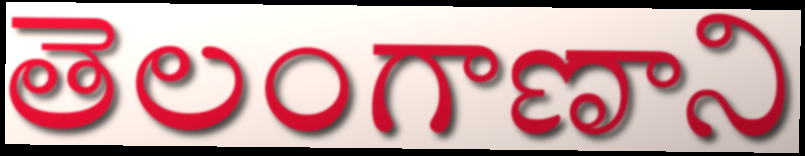
తెలంగాణాని